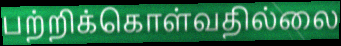
பற்றிக்கொள்வதில்லை